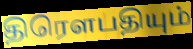
திரெளபதியும்